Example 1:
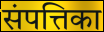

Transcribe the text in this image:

संपत्तिका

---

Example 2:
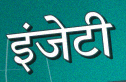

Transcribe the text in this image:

इंजेटी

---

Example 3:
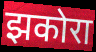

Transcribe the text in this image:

झकोरा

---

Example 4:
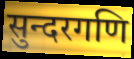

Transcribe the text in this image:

सुन्दरगणि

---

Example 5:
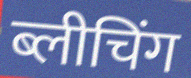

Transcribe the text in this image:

ब्‍लीचिंग